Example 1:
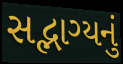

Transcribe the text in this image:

સદ્ભાગ્યનું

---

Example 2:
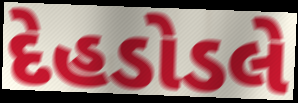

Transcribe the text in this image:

દેહડોડલે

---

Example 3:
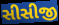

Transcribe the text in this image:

સીસીજી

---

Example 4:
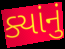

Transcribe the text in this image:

ક્યાંનું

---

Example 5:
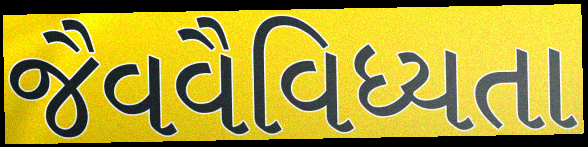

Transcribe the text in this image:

જૈવવૈવિધ્યતા